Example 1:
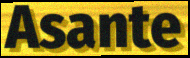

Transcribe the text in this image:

Asante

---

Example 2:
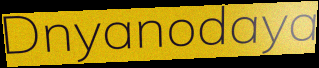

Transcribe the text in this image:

Dnyanodaya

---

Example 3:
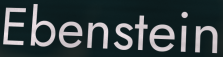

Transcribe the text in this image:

Ebenstein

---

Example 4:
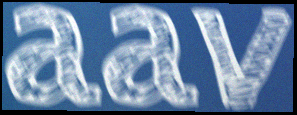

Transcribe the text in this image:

aav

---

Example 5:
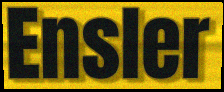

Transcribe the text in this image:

Ensler